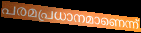
പരമപ്രധാനമാണെന്ന്